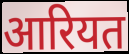
आरियत